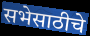
सभेसाठीचे